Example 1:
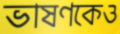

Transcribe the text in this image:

ভাষণকেও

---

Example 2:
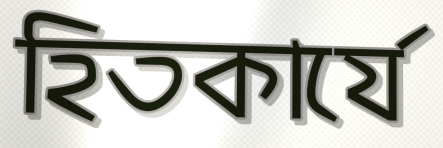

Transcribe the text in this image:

হিতকার্যে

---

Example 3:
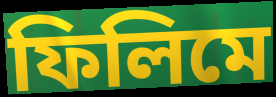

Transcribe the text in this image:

ফিলিমে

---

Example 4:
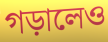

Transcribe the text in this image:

গড়ালেও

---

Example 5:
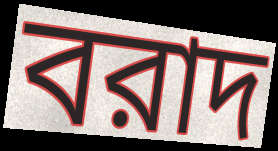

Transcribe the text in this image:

বরাদ